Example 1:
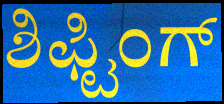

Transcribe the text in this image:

ಶಿಫ್ಟಿಂಗ್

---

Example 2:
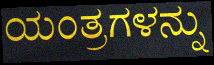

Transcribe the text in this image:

ಯಂತ್ರಗಳನ್ನು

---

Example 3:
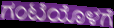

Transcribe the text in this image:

ಗಂಟೆಯೊಳಗೆ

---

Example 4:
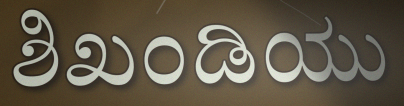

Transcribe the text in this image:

ಶಿಖಂಡಿಯು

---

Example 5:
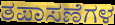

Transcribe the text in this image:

ತಪಾಸಣೆಗಳ